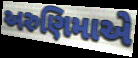
અરુણિમાએ